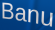
Banu